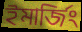
ইমার্জিং